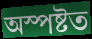
অস্পষ্টত